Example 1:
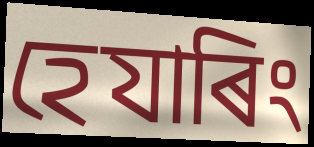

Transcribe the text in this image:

হেযাৰিং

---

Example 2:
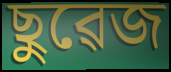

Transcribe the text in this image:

ছুৱেজ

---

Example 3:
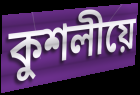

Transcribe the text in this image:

কুশলীয়ে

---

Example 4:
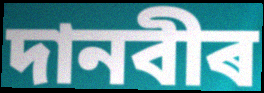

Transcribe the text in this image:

দানবীৰ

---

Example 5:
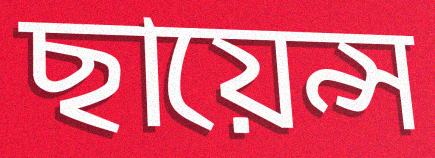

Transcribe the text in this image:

ছায়েন্স